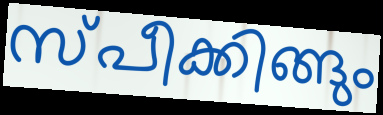
സ്പീക്കിങ്ങും